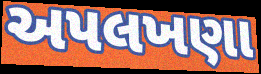
અપલખણા